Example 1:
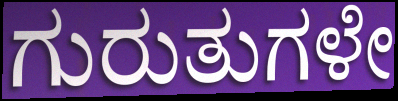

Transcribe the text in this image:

ಗುರುತುಗಳೇ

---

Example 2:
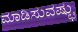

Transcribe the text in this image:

ಮಾಡಿಸುವಷ್ಟು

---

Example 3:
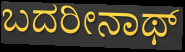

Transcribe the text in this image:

ಬದರೀನಾಥ್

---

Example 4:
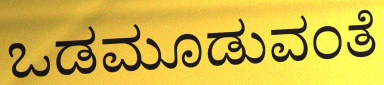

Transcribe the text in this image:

ಒಡಮೂಡುವಂತೆ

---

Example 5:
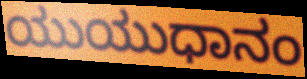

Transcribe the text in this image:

ಯುಯುಧಾನಂ